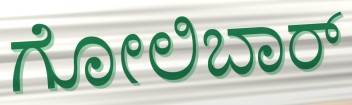
ಗೋಲಿಬಾರ್